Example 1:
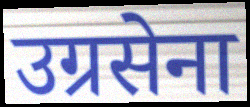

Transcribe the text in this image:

उग्रसेना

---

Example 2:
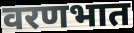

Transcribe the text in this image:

वरणभात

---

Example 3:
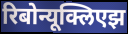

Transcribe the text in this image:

रिबोन्यूक्लिएझ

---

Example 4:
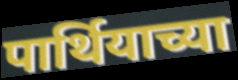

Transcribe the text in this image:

पार्थियाच्या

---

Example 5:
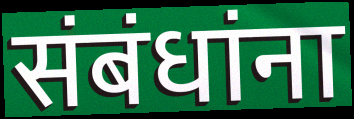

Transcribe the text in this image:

संबंधांना